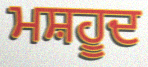
ਮਸ਼ਹੂਦ